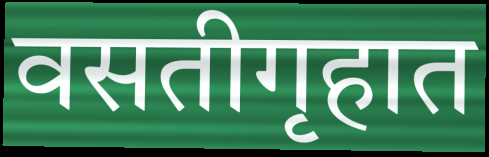
वसतीगृहात